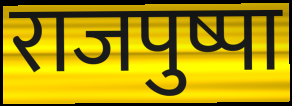
राजपुष्पा